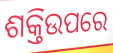
ଶକ୍ତିଉପରେ